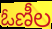
ఓణీల